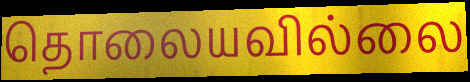
தொலையவில்லை